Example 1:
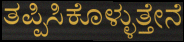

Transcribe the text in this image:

ತಪ್ಪಿಸಿಕೊಳ್ಳುತ್ತೇನೆ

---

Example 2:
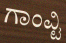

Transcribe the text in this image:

ಗಾಂವ್ಟಿ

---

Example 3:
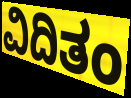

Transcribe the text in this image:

ವಿದಿತಂ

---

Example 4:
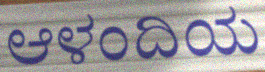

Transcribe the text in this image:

ಆಳಂದಿಯ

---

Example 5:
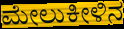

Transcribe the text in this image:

ಮೇಲುಕೀಳಿನ